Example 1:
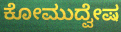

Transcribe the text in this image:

ಕೋಮುದ್ವೇಷ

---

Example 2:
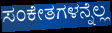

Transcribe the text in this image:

ಸಂಕೇತಗಳನ್ನೆಲ್ಲ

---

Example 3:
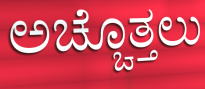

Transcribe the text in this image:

ಅಚ್ಚೊತ್ತಲು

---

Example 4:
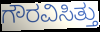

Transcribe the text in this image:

ಗೌರವಿಸಿತ್ತು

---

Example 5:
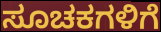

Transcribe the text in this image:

ಸೂಚಕಗಳಿಗೆ